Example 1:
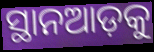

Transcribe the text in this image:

ସ୍ଥାନଆଡ଼କୁ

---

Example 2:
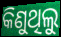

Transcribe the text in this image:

କିଣୁଥିଲୁ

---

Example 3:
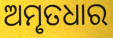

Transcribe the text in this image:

ଅମୃତଧାର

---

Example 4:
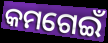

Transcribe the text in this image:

କମଗେଇଁ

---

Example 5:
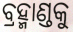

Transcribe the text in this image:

ବ୍ରହ୍ମାଣ୍ଡକୁ